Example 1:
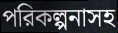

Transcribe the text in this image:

পরিকল্পনাসহ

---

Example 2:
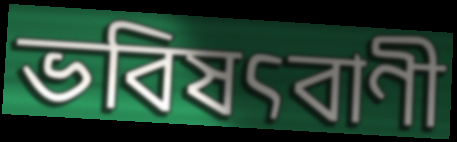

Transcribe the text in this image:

ভবিষৎবাণী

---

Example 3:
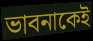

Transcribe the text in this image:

ভাবনাকেই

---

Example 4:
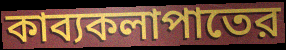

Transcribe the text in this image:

কাব্যকলাপাতের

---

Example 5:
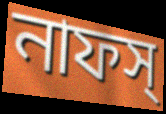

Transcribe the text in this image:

নাফস্